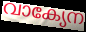
വാക്യേന